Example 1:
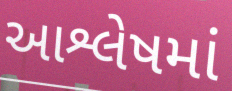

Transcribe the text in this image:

આશ્લેષમાં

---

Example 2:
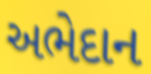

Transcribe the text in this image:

અભેદાન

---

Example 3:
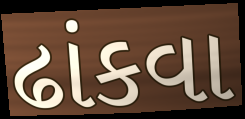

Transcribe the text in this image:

ઢાંકવા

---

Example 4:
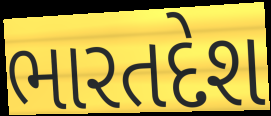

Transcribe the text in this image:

ભારતદેશ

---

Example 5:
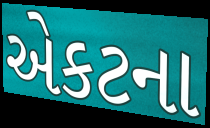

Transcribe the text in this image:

એકટના